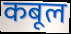
कबूल